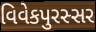
વિવેકપુરસ્સર